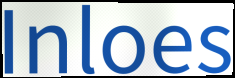
Inloes